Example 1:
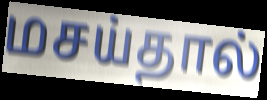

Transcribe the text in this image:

மசய்தால்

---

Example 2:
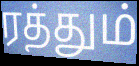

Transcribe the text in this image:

ரத்தும்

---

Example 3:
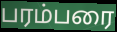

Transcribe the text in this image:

பரம்பரை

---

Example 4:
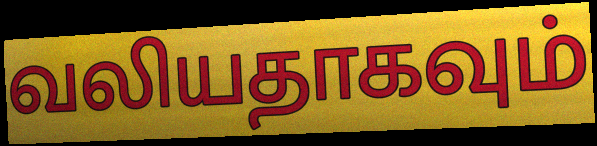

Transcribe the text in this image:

வலியதாகவும்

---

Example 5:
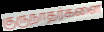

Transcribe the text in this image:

குருநாதர்களை